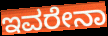
ಇವರೇನಾ